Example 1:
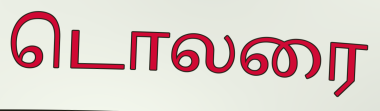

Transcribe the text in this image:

டொலரை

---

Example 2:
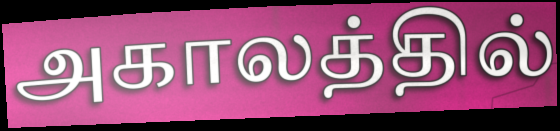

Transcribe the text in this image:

அகாலத்தில்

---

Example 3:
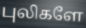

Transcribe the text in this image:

புலிகளே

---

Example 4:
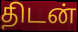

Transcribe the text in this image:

திடன்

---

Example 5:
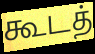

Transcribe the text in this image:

கூடத்